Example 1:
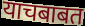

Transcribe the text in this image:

याचबाबत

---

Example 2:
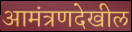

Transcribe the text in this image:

आमंत्रणदेखील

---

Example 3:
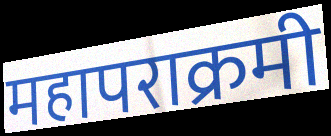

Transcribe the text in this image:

महापराक्रमी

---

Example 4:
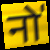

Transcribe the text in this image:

नो॑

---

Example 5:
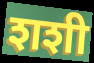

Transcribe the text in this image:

शशी